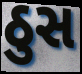
ઠુસ